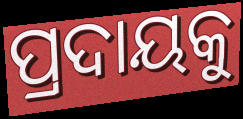
ପ୍ରଦାୟକୁ